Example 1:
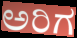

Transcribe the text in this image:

ಅರಿಗ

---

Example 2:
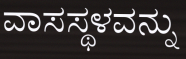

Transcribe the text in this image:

ವಾಸಸ್ಥಳವನ್ನು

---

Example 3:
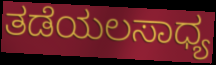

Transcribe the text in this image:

ತಡೆಯಲಸಾಧ್ಯ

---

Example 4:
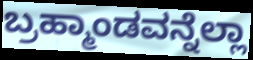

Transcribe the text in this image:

ಬ್ರಹ್ಮಾಂಡವನ್ನೆಲ್ಲಾ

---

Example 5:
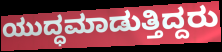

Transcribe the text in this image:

ಯುದ್ಧಮಾಡುತ್ತಿದ್ದರು